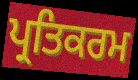
ਪ੍ਰਤਿਕਰਮ